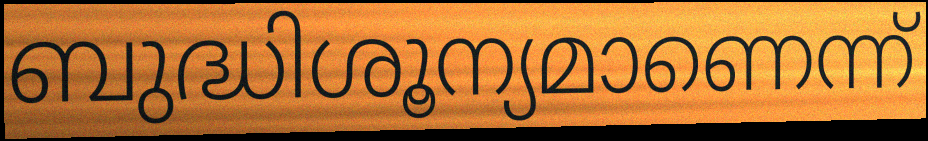
ബുദ്ധിശൂന്യമാണെന്ന്